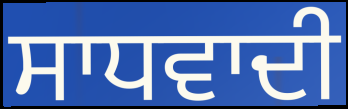
ਸਾਧਵਾਦੀ